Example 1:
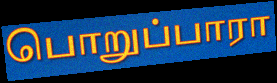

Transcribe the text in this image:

பொறுப்பாரா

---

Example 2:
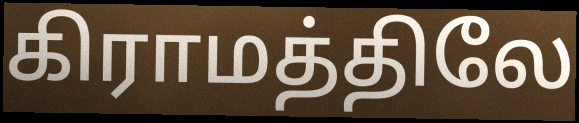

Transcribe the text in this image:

கிராமத்திலே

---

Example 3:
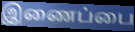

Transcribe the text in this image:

இணைப்பை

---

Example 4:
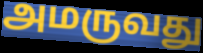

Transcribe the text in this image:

அமருவது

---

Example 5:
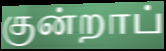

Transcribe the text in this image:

குன்றாப்